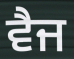
ਵੈਜ